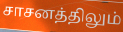
சாசனத்திலும்